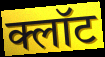
क्‍लॉट